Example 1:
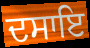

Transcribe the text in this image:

ਦਸਾਇ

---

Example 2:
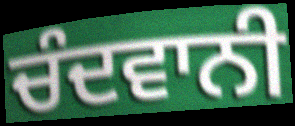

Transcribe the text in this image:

ਚੰਦਵਾਨੀ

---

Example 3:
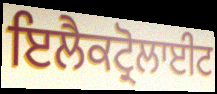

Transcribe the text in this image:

ਇਲੈਕਟ੍ਰੋਲਾਈਟ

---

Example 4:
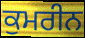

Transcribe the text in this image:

ਕੁਮਰੀਨ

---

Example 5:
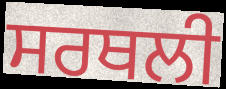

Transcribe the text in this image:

ਸਰਥਲੀ